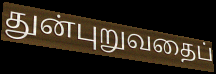
துன்புறுவதைப்